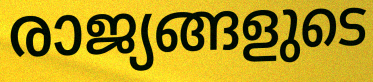
രാജ്യങ്ങളുടെ